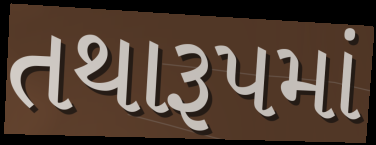
તથારૂપમાં